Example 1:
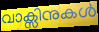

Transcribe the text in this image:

വാക്സിനുകൾ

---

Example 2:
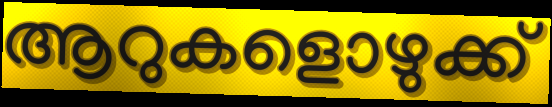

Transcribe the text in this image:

ആറുകളൊഴുക്ക്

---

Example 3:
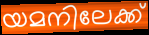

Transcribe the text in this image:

യമനിലേക്ക്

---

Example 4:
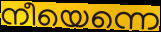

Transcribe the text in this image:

നീയെന്നെ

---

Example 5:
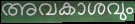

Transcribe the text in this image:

അവകാശവും